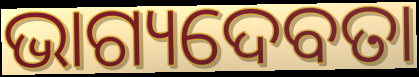
ଭାଗ୍ୟଦେବତା